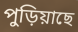
পুড়িয়াছে